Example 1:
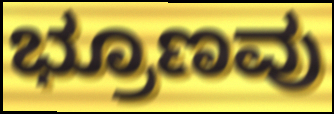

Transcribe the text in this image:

ಭ್ರೂಣವು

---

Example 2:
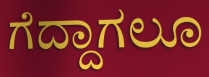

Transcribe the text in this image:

ಗೆದ್ದಾಗಲೂ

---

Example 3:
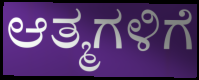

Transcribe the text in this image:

ಆತ್ಮಗಳಿಗೆ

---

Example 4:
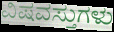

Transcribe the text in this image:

ವಿಷವಸ್ತುಗಳು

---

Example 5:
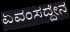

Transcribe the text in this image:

ಏವಂಸದ್ದೇನ